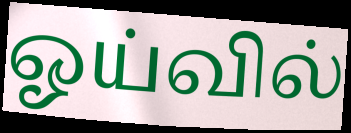
ஓய்வில்